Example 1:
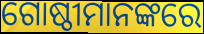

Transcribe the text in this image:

ଗୋଷ୍ଠୀମାନଙ୍କରେ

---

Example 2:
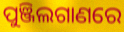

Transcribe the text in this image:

ପୁଞ୍ଜିଲଗାଣରେ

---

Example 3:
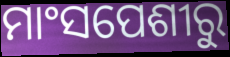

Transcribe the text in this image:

ମାଂସପେଶୀରୁ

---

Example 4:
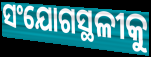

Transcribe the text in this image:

ସଂଯୋଗସ୍ଥଳୀକୁ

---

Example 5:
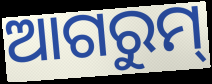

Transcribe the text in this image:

ଆଗରୁମ୍